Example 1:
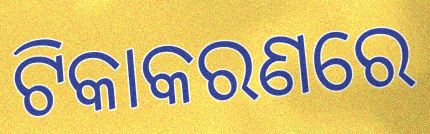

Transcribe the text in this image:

ଟିକାକରଣରେ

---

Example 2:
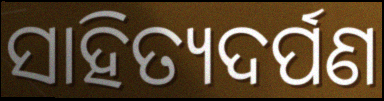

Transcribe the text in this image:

ସାହିତ୍ୟଦର୍ପଣ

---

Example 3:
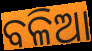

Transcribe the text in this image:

ବଳିଆ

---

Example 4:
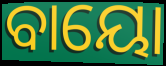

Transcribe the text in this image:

ବାୟୋ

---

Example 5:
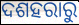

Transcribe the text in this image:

ଦଶହରାରୁ